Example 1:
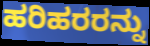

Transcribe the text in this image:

ಹರಿಹರರನ್ನು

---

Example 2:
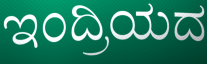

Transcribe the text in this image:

ಇಂದ್ರಿಯದ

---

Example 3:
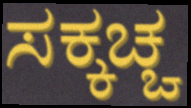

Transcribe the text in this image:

ಸಕ್ಕಚ್ಚ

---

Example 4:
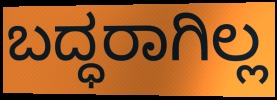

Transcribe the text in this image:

ಬದ್ಧರಾಗಿಲ್ಲ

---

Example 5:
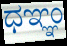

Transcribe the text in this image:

ಧಞ್ಞಂ